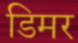
डिमर